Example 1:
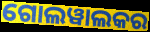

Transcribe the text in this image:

ଗୋଲୱାଲକର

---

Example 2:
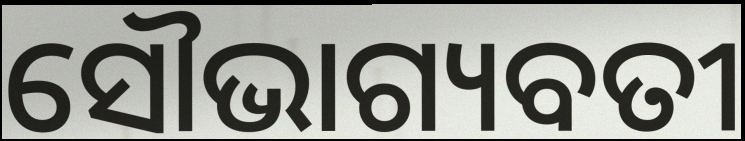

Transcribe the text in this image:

ସୌଭାଗ୍ୟବତୀ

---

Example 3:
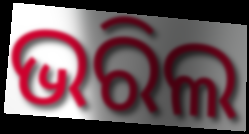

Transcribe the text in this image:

ଭରିଲ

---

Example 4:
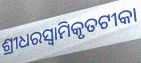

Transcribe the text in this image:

ଶ୍ରୀଧରସ୍ଵାମିକୃତଟୀକା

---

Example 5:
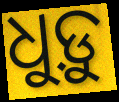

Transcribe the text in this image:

ଧୁଡ଼ୁ